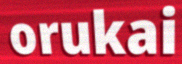
orukai